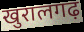
खुरालगढ़